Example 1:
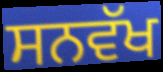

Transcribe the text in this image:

ਸਨਵੱਖ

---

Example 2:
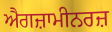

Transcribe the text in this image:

ਐਗਜ਼ਾਮੀਨਰਜ਼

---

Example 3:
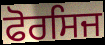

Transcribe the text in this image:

ਫੋਰਸਿਜ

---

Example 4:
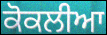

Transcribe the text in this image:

ਕੋਕਲੀਆ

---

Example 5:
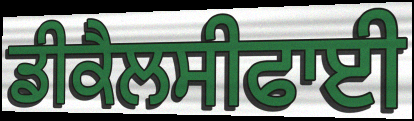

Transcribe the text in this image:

ਡੀਕੈਲਸੀਫਾਈ